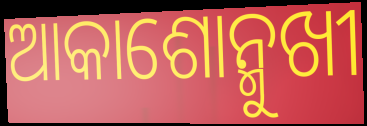
ଆକାଶୋନ୍ମୁଖୀ